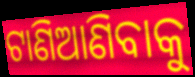
ଟାଣିଆଣିବାକୁ